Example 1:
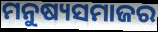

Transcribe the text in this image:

ମନୁଷ୍ୟସମାଜର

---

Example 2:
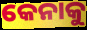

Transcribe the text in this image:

କେନାକୁ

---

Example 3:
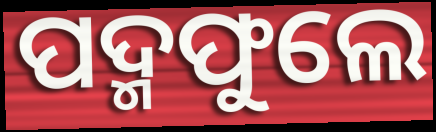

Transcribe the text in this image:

ପଦ୍ମଫୁଲେ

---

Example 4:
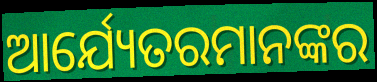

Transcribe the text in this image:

ଆର୍ଯ୍ୟେତରମାନଙ୍କର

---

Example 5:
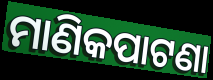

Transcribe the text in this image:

ମାଣିକପାଟଣା